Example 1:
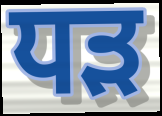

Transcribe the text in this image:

ਧੜ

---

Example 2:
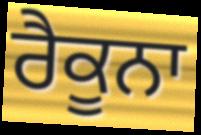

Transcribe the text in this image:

ਰੈਕੂਨਾ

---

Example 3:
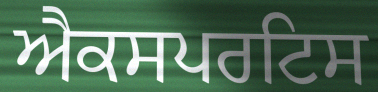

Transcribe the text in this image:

ਐਕਸਪਰਟਿਸ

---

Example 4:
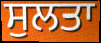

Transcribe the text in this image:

ਸੁਲਤਾ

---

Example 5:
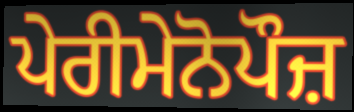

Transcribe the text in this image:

ਪੇਰੀਮੇਨੋਪੌਜ਼